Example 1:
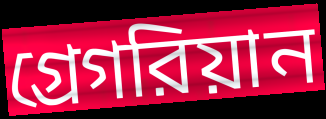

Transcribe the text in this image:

গ্রেগরিয়ান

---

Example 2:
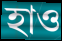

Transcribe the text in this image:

হাও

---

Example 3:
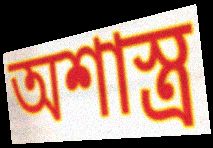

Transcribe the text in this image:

অশাস্ত্র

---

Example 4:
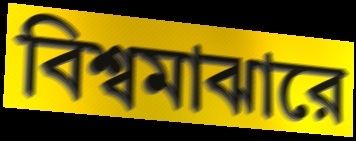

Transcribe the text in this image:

বিশ্বমাঝারে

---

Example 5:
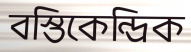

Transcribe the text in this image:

বস্তিকেন্দ্রিক